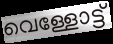
വെള്ളോട്ട്